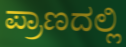
ಪ್ರಾಣದಲ್ಲಿ